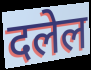
दलेल